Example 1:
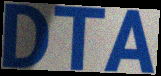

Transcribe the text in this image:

DTA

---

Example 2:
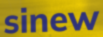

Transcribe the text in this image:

sinew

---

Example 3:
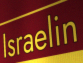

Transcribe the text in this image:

Israelin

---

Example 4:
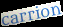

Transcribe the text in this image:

carrion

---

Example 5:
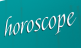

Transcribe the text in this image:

horoscope